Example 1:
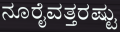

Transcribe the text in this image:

ನೂರೈವತ್ತರಷ್ಟು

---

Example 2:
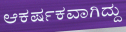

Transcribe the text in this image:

ಆಕರ್ಷಕವಾಗಿದ್ದು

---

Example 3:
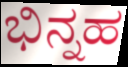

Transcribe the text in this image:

ಭಿನ್ನಹ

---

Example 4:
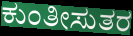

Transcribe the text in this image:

ಕುಂತೀಸುತರ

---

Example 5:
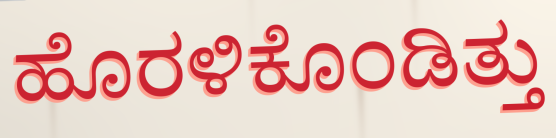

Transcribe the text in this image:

ಹೊರಳಿಕೊಂಡಿತ್ತು